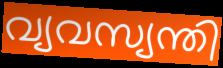
വ്യവസ്യന്തി